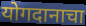
योगदानाचा